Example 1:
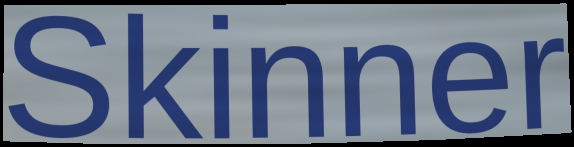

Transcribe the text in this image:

Skinner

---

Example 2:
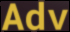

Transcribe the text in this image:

Adv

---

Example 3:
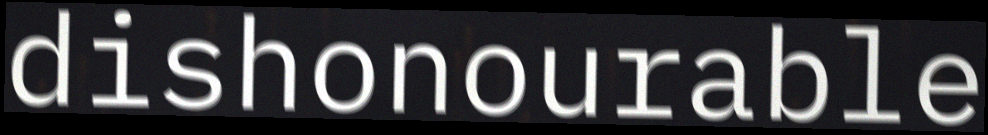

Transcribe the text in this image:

dishonourable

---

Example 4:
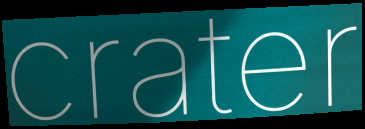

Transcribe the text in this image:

crater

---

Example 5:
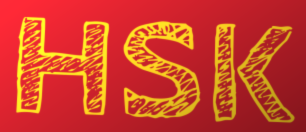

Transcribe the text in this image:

HSK